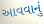
આવવાનું